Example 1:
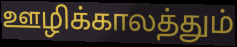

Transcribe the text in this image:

ஊழிக்காலத்தும்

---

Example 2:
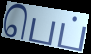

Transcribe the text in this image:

பெப்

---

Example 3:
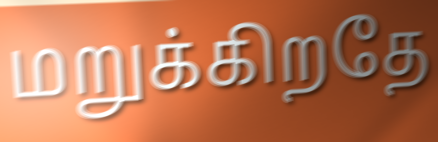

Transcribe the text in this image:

மறுக்கிறதே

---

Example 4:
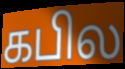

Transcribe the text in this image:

கபில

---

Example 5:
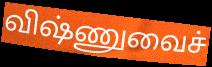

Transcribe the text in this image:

விஷ்ணுவைச்